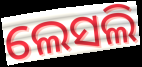
ଲେସଲି